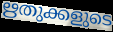
ഋതുക്കളുടെ